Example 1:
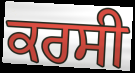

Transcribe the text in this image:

ਕਰਸੀ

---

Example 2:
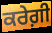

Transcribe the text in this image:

ਕਰੇਗ਼ੀ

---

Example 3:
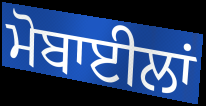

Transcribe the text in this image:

ਮੋਬਾਈਲਾਂ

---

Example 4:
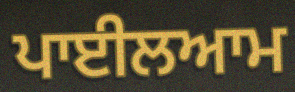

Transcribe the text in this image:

ਪਾਈਲਆਮ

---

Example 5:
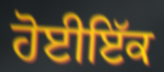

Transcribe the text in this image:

ਹੋਈਇੱਕ